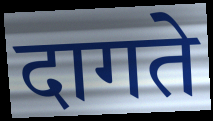
दागते